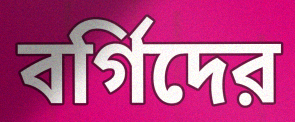
বর্গিদের